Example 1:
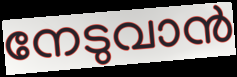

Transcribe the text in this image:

നേടുവാൻ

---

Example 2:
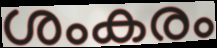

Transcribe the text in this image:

ശംകരം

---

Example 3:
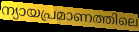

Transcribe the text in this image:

ന്യായപ്രമാണത്തിലെ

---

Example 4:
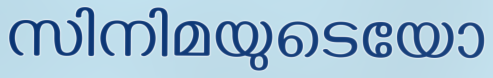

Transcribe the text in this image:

സിനിമയുടെയോ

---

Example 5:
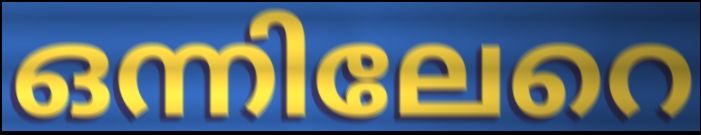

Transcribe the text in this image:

ഒന്നിലേറെ